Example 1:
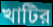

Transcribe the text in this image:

খাটির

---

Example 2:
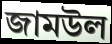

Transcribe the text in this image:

জামউল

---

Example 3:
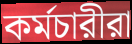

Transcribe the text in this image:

কর্মচারীরা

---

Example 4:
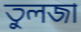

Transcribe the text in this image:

তুলজা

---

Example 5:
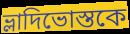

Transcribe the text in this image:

ভ্লাদিভোস্তকে